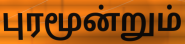
புரமூன்றும்